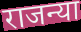
राजन्या